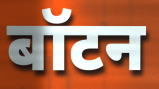
बॉटन